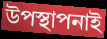
উপস্থাপনাই